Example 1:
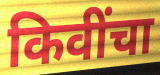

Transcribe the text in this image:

किवींचा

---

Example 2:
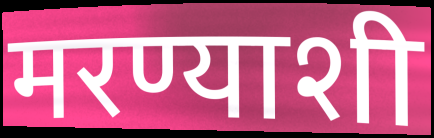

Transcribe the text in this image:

मरण्याशी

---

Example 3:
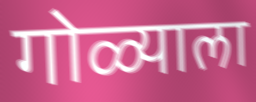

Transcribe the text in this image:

गोळ्याला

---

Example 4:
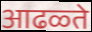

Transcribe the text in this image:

आढळ्ते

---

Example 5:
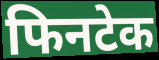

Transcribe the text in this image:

फिनटेक